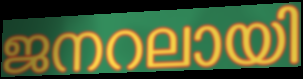
ജനറലായി